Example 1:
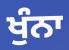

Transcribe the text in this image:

ਖੁੰਨਾ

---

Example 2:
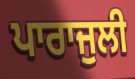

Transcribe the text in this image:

ਪਾਰਾਜੁਲੀ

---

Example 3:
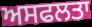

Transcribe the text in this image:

ਅਸਫਲਤਾ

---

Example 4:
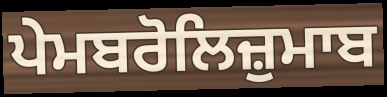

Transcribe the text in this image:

ਪੇਮਬਰੋਲਿਜ਼ੁਮਾਬ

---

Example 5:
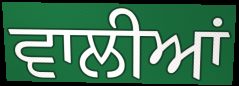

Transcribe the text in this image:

ਵਾਲੀਆਂ